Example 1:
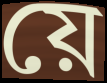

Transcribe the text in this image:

য়ে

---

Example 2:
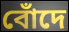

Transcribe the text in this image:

বোঁদে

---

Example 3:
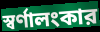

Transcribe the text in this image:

স্বর্ণালংকার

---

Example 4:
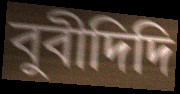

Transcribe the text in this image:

বুবীদিদি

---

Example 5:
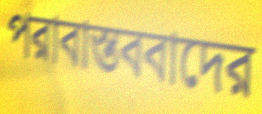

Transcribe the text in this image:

পরাবাস্তববাদের